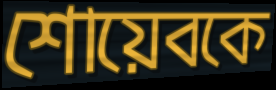
শোয়েবকে